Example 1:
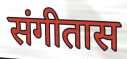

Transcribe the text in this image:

संगीतास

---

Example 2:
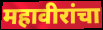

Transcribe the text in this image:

महावीरांचा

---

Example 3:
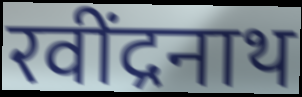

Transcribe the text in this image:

रवींद्रनाथ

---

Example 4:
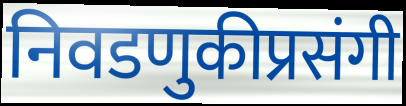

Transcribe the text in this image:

निवडणुकीप्रसंगी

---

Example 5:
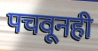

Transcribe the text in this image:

पचवूनही